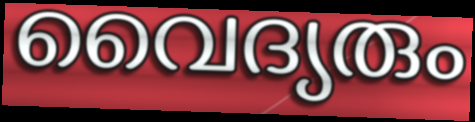
വൈദ്യരും